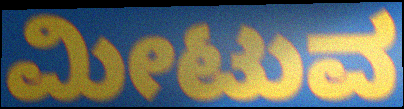
ಮೀಟುವ